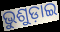
ଭୁଶୁଡ଼ାଇ